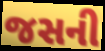
જસની